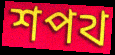
শপথ